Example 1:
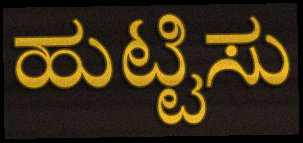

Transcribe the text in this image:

ಹುಟ್ಟಿಸು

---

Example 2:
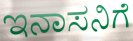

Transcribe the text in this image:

ಇನಾಸನಿಗೆ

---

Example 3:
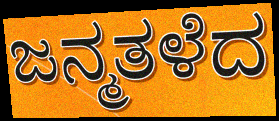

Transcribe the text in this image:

ಜನ್ಮತಳೆದ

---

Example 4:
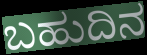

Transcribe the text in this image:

ಬಹುದಿನ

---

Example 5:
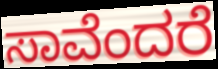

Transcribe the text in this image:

ಸಾವೆಂದರೆ